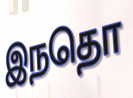
இநதொ